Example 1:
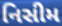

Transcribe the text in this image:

નિસીમ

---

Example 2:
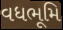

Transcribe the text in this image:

વધભૂમિ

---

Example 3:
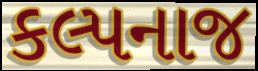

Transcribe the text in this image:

કલ્પનાજ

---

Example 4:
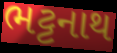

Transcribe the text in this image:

ભટ્ટનાથ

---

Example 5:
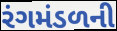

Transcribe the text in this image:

રંગમંડળની